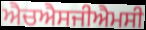
ਐਚਐਸਜੀਐਮਸੀ